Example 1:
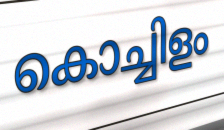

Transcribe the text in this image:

കൊച്ചിളം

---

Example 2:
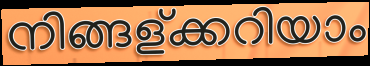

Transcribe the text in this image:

നിങ്ങള്ക്കറിയാം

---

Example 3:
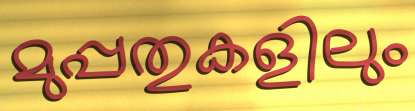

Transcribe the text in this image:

മുപ്പതുകളിലും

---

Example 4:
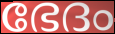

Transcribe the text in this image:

ഭേദം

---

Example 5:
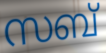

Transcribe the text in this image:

സബ്